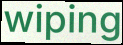
wiping